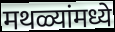
मथळ्यांमध्ये